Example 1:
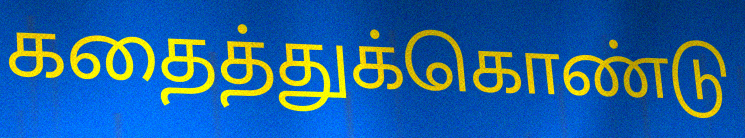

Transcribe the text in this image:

கதைத்துக்கொண்டு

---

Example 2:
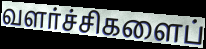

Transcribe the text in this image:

வளர்ச்சிகளைப்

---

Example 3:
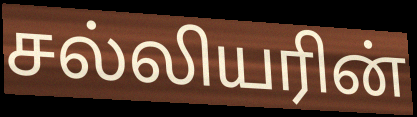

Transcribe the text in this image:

சல்லியரின்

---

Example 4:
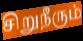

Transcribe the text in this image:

சிறுநீரும்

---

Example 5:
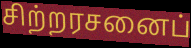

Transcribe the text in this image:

சிற்றரசனைப்